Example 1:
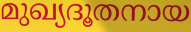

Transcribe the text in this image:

മുഖ്യദൂതനായ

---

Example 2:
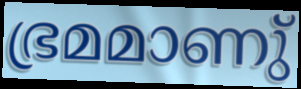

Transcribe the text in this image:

ഭ്രമമാണു്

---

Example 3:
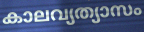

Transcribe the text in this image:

കാലവ്യത്യാസം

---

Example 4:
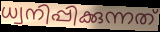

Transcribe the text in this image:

ധ്വനിപ്പിക്കുന്നത്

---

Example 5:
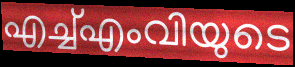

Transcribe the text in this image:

എച്ച്എംവിയുടെ